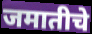
जमातीचे